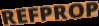
REFPROP